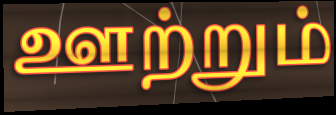
ஊற்றும்